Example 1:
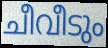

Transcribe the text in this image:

ചീവീടും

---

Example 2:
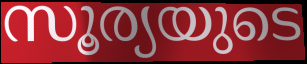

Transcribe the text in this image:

സൂര്യയുടെ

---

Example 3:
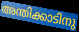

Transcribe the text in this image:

അന്തിക്കാടിനു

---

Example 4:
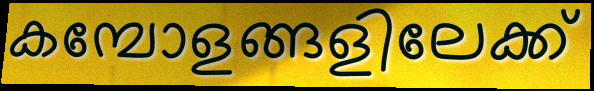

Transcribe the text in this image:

കമ്പോളങ്ങളിലേക്ക്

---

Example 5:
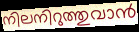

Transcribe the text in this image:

നിലനിറുത്തുവാൻ